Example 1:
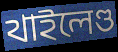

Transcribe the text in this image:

থাইলেণ্ড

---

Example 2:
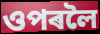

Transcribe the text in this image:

ওপৰলৈ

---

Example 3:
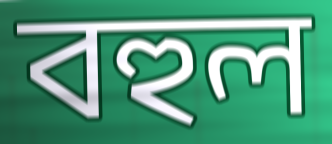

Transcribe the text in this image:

বহুল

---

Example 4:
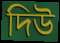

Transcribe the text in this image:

দিউ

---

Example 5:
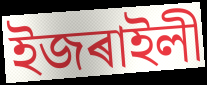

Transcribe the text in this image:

ইজৰাইলী